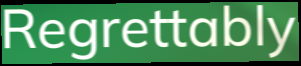
Regrettably